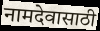
नामदेवासाठी